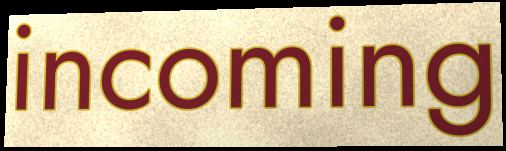
incoming